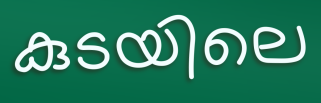
കുടയിലെ